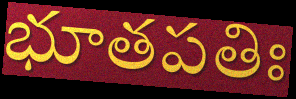
భూతపతిః